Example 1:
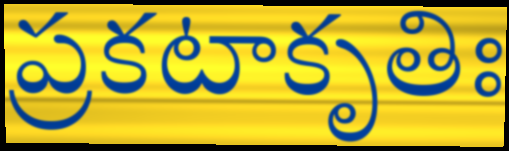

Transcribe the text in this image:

ప్రకటాకృతిః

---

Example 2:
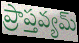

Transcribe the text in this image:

ప్రాప్తవ్యమ్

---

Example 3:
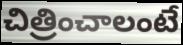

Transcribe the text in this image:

చిత్రించాలంటే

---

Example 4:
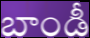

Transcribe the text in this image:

బాండీ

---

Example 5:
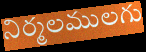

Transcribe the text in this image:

నిర్మలములగు